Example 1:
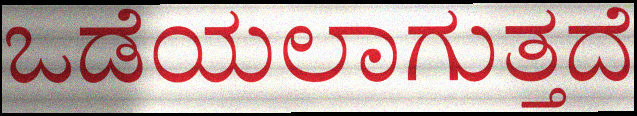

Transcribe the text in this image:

ಒಡೆಯಲಾಗುತ್ತದೆ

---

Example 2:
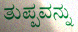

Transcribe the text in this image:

ತುಪ್ಪವನ್ನು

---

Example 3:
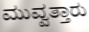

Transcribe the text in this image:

ಮುವ್ವತ್ತಾರು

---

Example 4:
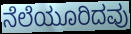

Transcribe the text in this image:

ನೆಲೆಯೂರಿದವು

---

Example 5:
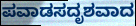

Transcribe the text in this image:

ಪವಾಡಸದೃಶವಾದ